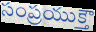
సంప్రయుక్తౌ